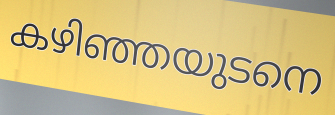
കഴിഞ്ഞയുടനെ